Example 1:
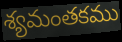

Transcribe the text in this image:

శ్యమంతకము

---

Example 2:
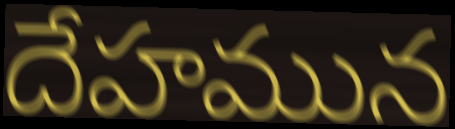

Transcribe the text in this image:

దేహమున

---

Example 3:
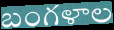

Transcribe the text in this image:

బంగళాల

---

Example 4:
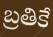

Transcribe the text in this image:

బ్రతికే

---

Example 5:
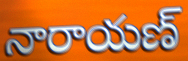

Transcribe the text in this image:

నారాయణ్